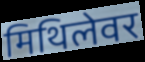
मिथिलेवर